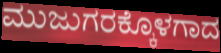
ಮುಜುಗರಕ್ಕೊಳಗಾದ